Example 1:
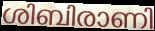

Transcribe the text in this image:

ശിബിരാണി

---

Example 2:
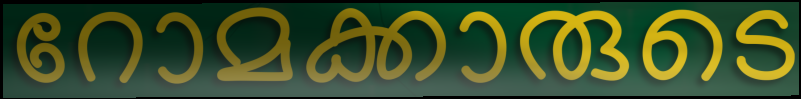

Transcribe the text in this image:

റോമക്കാരുടെ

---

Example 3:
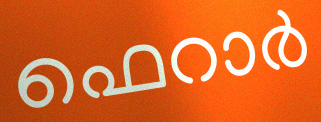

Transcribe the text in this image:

ഫെറാർ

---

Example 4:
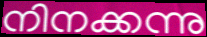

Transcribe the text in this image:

നിനക്കന്നു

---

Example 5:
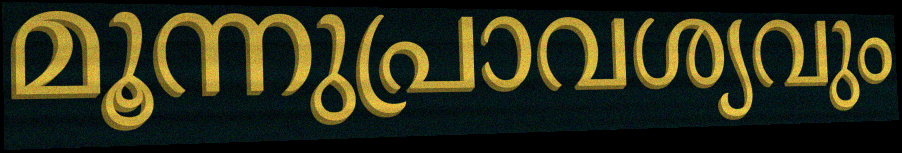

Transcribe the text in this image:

മൂന്നുപ്രാവശ്യവും